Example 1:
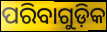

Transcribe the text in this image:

ପରିବାଗୁଡ଼ିକ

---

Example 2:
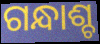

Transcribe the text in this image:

ଗନ୍ଧାଶ୍ଚ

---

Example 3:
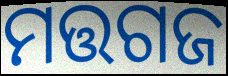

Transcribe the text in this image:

ମତ୍ତଗଜ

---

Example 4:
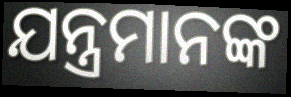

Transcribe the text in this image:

ଯନ୍ତ୍ରମାନଙ୍କ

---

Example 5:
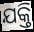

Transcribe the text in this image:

ଯକ୍ତି